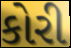
કોરી